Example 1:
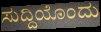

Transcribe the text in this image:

ಸುದ್ದಿಯೊಂದು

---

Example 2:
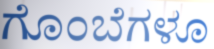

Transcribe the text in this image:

ಗೊಂಬೆಗಳೂ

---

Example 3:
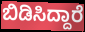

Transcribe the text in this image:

ಬಿಡಿಸಿದ್ದಾರೆ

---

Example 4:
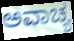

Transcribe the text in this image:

ಅವಾಚ್ಯ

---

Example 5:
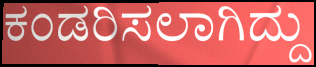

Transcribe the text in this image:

ಕಂಡರಿಸಲಾಗಿದ್ದು